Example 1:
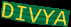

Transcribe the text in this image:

DIVYA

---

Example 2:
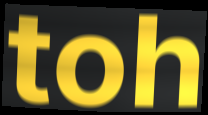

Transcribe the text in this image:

toh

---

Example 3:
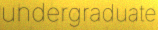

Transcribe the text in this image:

undergraduate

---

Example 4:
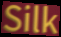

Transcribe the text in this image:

Silk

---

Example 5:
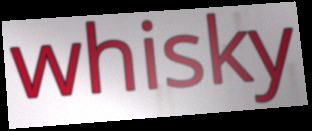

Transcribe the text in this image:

whisky